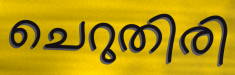
ചെറുതിരി